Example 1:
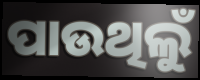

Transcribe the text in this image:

ପାଉଥିଲୁଁ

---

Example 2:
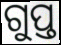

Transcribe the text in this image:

ଗୁପ୍ତ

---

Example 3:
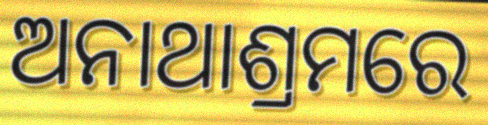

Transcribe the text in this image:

ଅନାଥାଶ୍ରମରେ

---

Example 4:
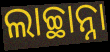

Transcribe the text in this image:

ଲାଚ୍ଛାନ୍ନା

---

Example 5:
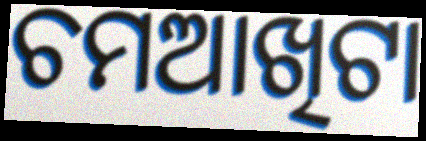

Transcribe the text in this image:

ଚମଆଖିଟା